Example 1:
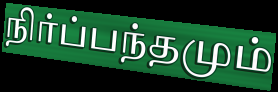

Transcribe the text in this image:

நிர்ப்பந்தமும்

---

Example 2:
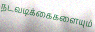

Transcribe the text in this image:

நடவடிக்கைகளையும்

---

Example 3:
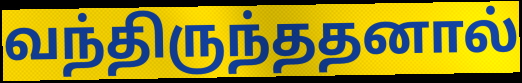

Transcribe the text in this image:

வந்திருந்ததனால்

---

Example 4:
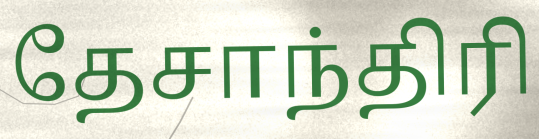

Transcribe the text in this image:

தேசாந்திரி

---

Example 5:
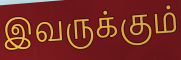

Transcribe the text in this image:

இவருக்கும்